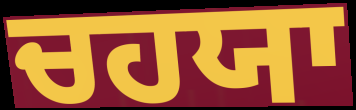
ਚਹਯਾ